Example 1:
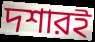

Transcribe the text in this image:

দশারই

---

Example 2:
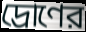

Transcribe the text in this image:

দ্রোণের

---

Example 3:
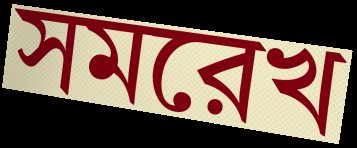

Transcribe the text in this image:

সমরেখ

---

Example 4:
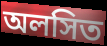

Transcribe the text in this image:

অলসিত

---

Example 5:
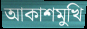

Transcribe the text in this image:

আকাশমুখি